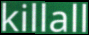
killall